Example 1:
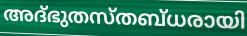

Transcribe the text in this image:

അദ്ഭുതസ്തബ്ധരായി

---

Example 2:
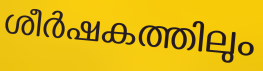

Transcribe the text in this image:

ശീർഷകത്തിലും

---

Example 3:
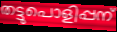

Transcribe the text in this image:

തട്ടുപൊളിപ്പന്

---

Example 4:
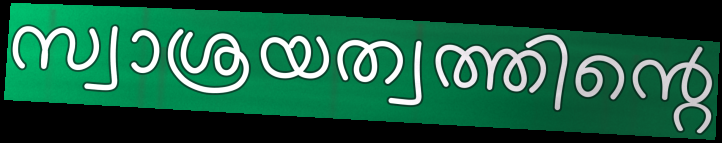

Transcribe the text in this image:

സ്വാശ്രയത്വത്തിന്റെ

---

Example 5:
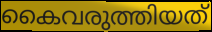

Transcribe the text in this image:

കൈവരുത്തിയത്